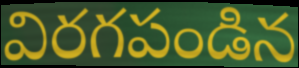
విరగపండిన